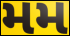
મમ